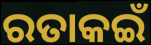
ରତାକଇଁ